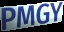
PMGY